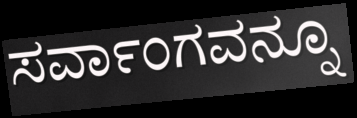
ಸರ್ವಾಂಗವನ್ನೂ